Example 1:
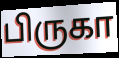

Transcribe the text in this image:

பிருகா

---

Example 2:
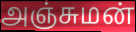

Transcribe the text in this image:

அஞ்சுமன்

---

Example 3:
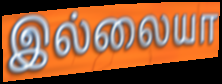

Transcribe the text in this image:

இல்லையா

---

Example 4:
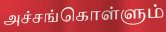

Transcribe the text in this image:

அச்சங்கொள்ளும்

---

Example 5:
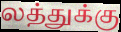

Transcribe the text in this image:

லத்துக்கு